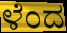
ಳೆಂದ